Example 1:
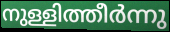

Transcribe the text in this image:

നുള്ളിത്തീർന്നു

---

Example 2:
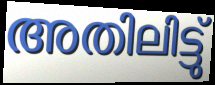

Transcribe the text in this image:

അതിലിട്ടു്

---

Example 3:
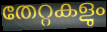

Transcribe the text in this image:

തേറ്റകളും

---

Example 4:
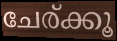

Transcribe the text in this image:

ചേര്ക്കൂ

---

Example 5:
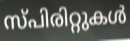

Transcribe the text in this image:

സ്പിരിറ്റുകൾ